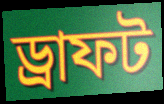
ড্রাফট